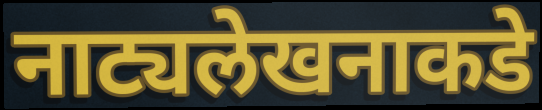
नाट्यलेखनाकडे